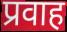
प्रवाह